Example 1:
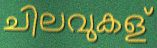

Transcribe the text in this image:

ചിലവുകള്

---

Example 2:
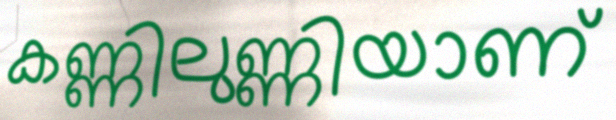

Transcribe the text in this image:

കണ്ണിലുണ്ണിയാണ്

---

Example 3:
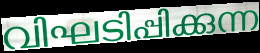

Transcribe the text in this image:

വിഘടിപ്പിക്കുന്ന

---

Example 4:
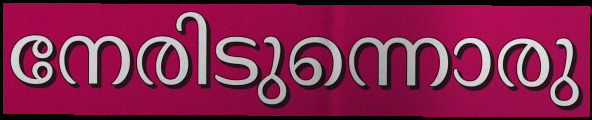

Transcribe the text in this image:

നേരിടുന്നൊരു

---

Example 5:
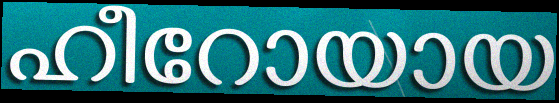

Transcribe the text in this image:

ഹീറോയായ